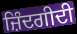
ਜ਼ਿੰਦਗੀਦੀ